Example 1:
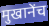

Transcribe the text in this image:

मुखानेंच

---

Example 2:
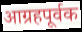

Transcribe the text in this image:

आग्रहपूर्वक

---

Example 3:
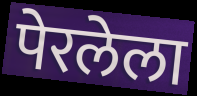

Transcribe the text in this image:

पेरलेला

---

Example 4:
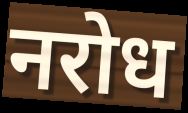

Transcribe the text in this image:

नरोध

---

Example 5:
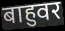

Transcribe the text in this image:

बाहुवर